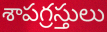
శాపగ్రస్తులు